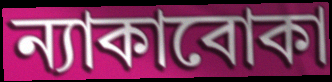
ন্যাকাবোকা